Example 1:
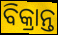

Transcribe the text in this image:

ବିକ୍ରାନ୍ତ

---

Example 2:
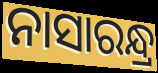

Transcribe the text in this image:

ନାସାରନ୍ଧ୍ର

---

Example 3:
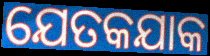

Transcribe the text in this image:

ଯେତକଯାକ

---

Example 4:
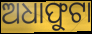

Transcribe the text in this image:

ଅଧାଫୁଟା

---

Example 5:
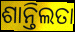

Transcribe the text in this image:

ଶାନ୍ତିଲତା